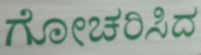
ಗೋಚರಿಸಿದ